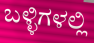
ಬಳ್ಳಿಗಳಲ್ಲಿ